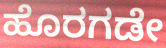
ಹೊರಗಡೇ